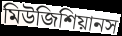
মিউজিশিয়ানস